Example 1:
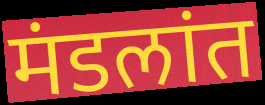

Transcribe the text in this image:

मंडलांत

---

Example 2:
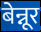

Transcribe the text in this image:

बेन्नूर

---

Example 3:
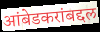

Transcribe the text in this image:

आंबेडकरांबद्दल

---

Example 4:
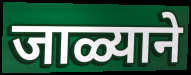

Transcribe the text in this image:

जाळ्याने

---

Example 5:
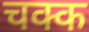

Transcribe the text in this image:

चक्क